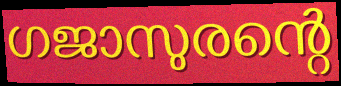
ഗജാസുരന്റെ